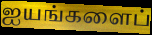
ஐயங்களைப்